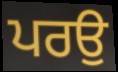
ਪਰਉ